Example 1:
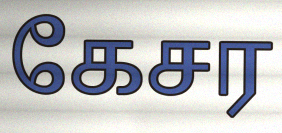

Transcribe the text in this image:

கேசர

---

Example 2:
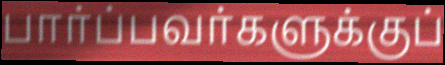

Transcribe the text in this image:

பார்ப்பவர்களுக்குப்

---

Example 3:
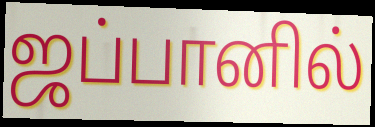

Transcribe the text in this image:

ஜப்பானில்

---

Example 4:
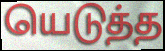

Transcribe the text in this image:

யெடுத்த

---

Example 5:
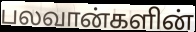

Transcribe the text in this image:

பலவான்களின்